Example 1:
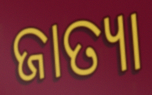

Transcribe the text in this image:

ଜାତ୍ୟା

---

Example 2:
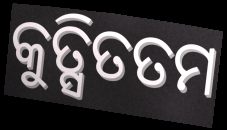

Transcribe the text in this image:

କୁତ୍ସିତତମ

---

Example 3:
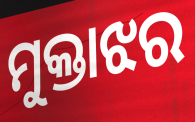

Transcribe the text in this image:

ମୁକ୍ତାଝର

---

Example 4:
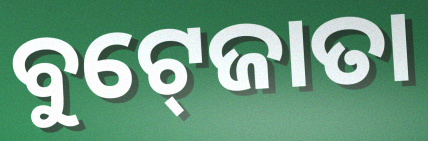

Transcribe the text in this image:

ବୁଟ୍‍ଜୋତା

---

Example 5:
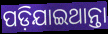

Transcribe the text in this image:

ପଡ଼ିଯାଇଥାନ୍ତା